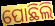
ପୋଛିଲି